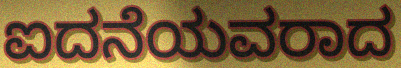
ಐದನೆಯವರಾದ